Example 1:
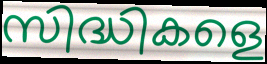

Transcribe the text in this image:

സിദ്ധികളെ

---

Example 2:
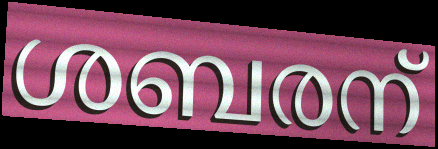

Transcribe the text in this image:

ശബരന്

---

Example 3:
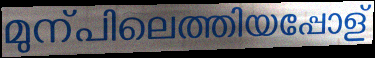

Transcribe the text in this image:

മുന്പിലെത്തിയപ്പോള്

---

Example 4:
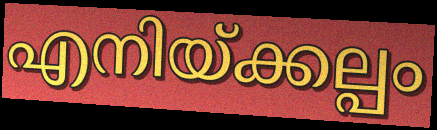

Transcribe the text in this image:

എനിയ്ക്കല്പം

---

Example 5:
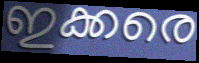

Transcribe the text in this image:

ഇക്കരെ